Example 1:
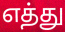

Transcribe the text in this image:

எத்து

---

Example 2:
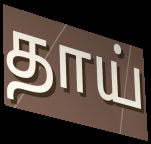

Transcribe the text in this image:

தாய்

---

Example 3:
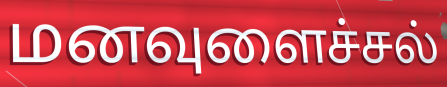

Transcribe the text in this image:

மனவுளைச்சல்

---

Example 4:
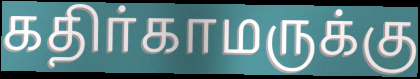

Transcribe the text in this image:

கதிர்காமருக்கு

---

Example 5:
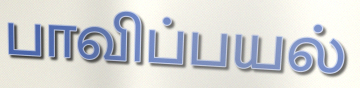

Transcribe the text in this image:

பாவிப்பயல்